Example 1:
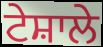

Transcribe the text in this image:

ਟੇਸ਼ਾਲੇ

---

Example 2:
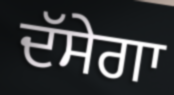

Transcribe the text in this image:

ਦੱਸੇਗਾ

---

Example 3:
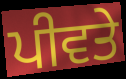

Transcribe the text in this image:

ਪੀਵਤੇ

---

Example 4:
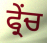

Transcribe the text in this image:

ਫ੍ਰੇਂਚ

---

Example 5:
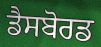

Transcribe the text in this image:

ਡੈਸਬੋਰਡ